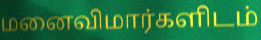
மனைவிமார்களிடம்